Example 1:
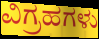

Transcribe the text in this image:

ವಿಗ್ರಹಗಳು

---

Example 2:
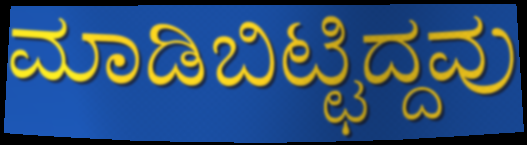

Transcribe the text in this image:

ಮಾಡಿಬಿಟ್ಟಿದ್ದವು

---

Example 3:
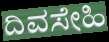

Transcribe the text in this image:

ದಿವಸೇಹಿ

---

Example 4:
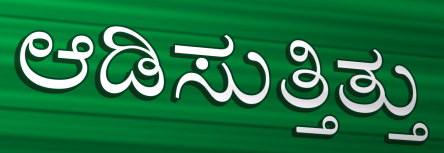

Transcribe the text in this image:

ಆಡಿಸುತ್ತಿತ್ತು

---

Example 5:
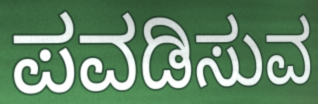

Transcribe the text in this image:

ಪವಡಿಸುವ